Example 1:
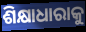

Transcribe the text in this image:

ଶିକ୍ଷାଧାରାକୁ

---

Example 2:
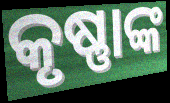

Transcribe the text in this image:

କୃଷ୍ଣାଙ୍କ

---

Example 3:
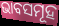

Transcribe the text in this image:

ଭାବସମୂହ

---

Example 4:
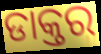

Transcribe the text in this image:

ଡାକ୍ତର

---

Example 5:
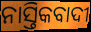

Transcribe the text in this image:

ନାସ୍ତିକବାଦୀ